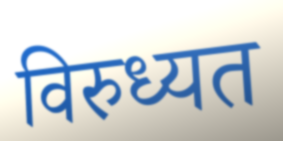
विरुध्यत